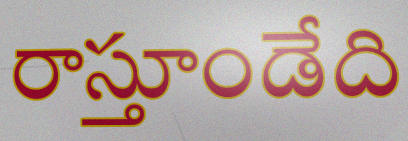
రాస్తూండేది